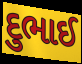
દુભાઈ